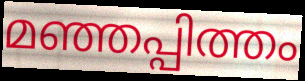
മഞ്ഞപ്പിത്തം